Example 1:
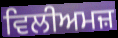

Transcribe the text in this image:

ਵਿਲੀਅਮਜ਼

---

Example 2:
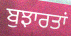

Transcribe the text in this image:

ਬੁਝਾਰਤਾਂ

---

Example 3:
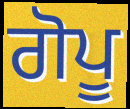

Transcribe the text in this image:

ਗੋਪੂ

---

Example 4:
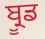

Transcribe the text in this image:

ਬ੍ਰੂਡ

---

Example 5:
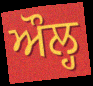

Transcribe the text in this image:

ਔਲ੍ਹ